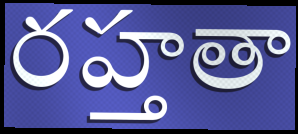
రహ్తతా